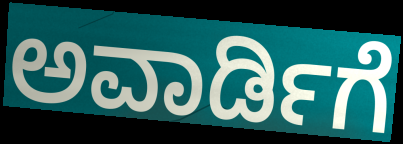
ಅವಾರ್ಡಿಗೆ